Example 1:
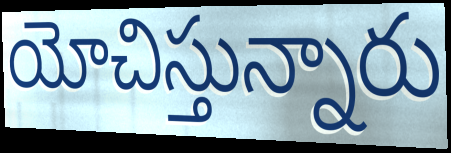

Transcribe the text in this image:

యోచిస్తున్నారు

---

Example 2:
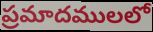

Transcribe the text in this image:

ప్రమాదములలో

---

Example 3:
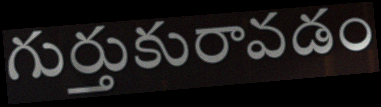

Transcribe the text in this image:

గుర్తుకురావడం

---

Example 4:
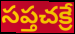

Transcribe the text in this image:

సప్తచక్రే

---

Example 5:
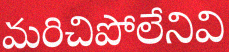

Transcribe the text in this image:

మరిచిపోలేనివి